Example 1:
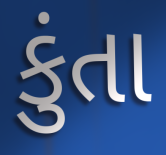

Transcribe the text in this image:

કુંતા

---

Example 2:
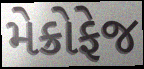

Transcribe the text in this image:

મેક્રોફેજ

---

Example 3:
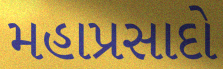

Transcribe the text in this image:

મહાપ્રસાદો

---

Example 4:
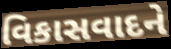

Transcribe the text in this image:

વિકાસવાદને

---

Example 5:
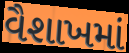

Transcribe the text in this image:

વૈશાખમાં